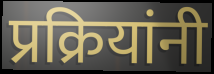
प्रक्रियांनी